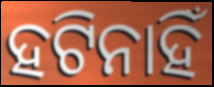
ହଟିନାହିଁ